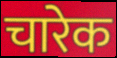
चारेक